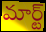
మార్ట్